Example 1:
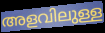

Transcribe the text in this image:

അളവിലുള്ള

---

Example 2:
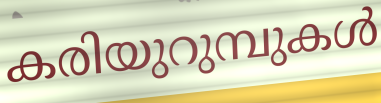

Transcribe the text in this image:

കരിയുറുമ്പുകൾ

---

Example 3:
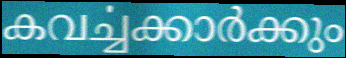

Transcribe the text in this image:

കവൎച്ചക്കാർക്കും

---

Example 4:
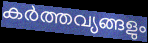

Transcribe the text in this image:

കർത്തവ്യങ്ങളും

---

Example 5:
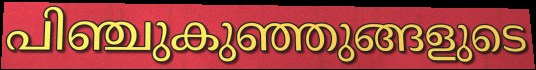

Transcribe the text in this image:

പിഞ്ചുകുഞ്ഞുങ്ങളുടെ